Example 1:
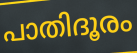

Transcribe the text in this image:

പാതിദൂരം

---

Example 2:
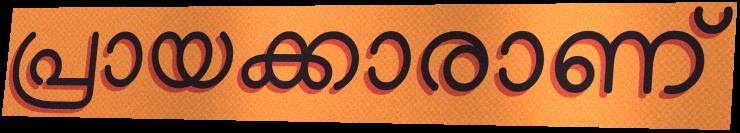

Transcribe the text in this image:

പ്രായക്കാരാണ്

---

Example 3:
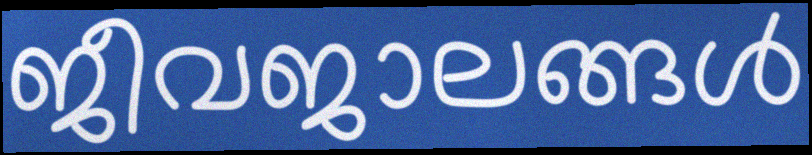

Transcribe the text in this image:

ജീവജാലങ്ങൾ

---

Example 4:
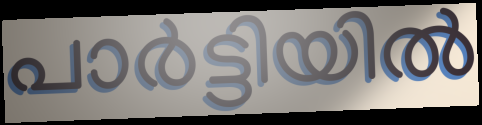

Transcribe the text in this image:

പാർട്ടിയിൽ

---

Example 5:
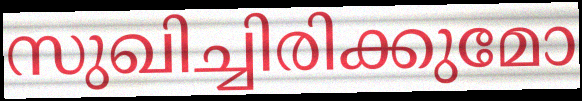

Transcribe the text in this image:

സുഖിച്ചിരിക്കുമോ